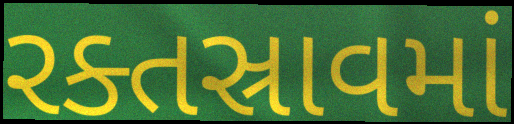
રક્તસ્રાવમાં